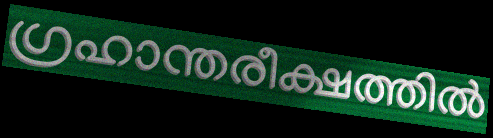
ഗ്രഹാന്തരീക്ഷത്തിൽ